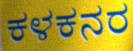
ಕಳಕನರ